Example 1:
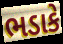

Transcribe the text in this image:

ભડાકે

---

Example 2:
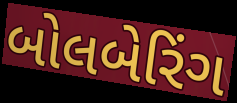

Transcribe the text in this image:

બોલબેરિંગ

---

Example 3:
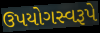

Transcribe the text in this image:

ઉપયોગસ્વરૂપે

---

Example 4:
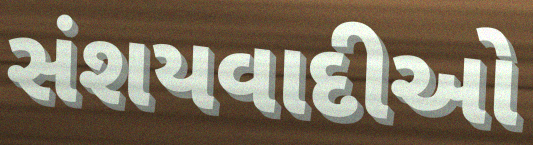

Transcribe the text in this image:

સંશયવાદીઓ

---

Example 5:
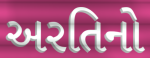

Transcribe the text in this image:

અરતિનો